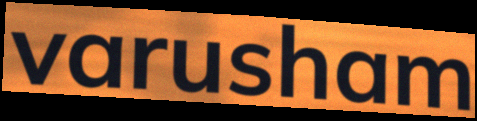
varusham